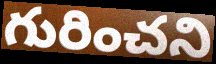
గురించని